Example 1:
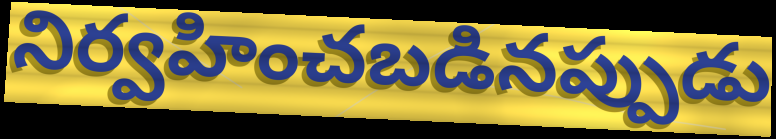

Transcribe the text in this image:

నిర్వహించబడినప్పుడు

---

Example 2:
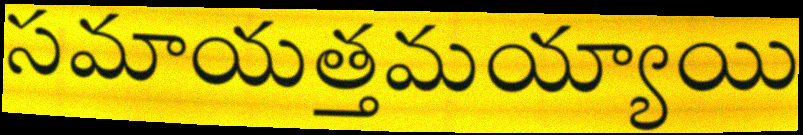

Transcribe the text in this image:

సమాయత్తమయ్యాయి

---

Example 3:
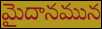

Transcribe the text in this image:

మైదానమున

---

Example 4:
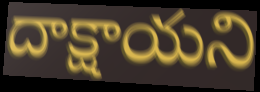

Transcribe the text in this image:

దాక్షాయని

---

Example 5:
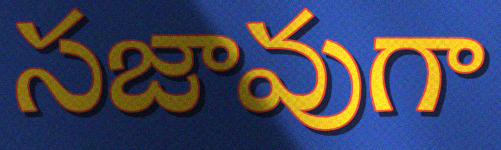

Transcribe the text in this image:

సజావుగా